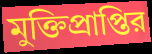
মুক্তিপ্রাপ্তির